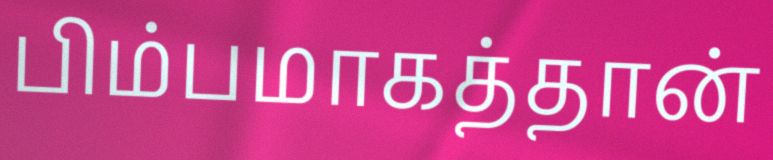
பிம்பமாகத்தான்